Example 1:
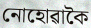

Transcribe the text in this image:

নোহোৱাকৈ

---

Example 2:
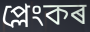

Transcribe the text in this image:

প্লেংকৰ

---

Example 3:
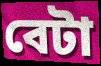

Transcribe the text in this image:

বেটা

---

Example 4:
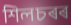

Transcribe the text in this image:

শিলচৰৰ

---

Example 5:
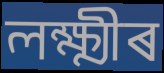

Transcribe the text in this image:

লক্ষ্মীৰ